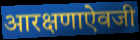
आरक्षणाऐवजी